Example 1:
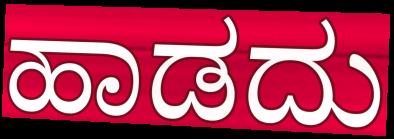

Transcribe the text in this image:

ಹಾಡದು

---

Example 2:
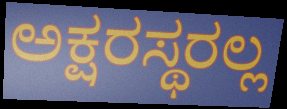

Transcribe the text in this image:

ಅಕ್ಷರಸ್ಥರಲ್ಲ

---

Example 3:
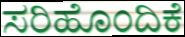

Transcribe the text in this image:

ಸರಿಹೊಂದಿಕೆ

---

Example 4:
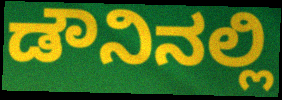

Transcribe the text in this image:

ಡೌನಿನಲ್ಲಿ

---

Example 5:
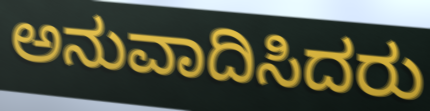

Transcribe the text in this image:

ಅನುವಾದಿಸಿದರು